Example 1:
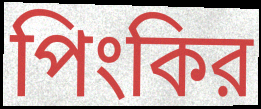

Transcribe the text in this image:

পিংকির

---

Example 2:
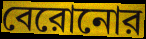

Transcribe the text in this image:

বেরোনোর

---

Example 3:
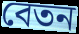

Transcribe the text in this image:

বেতন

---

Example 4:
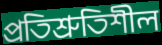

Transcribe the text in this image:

প্রতিশ্রুতিশীল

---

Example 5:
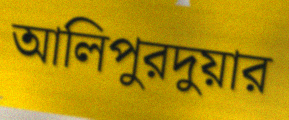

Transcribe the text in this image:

আলিপুরদুয়ার